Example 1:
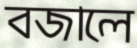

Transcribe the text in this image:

বজালে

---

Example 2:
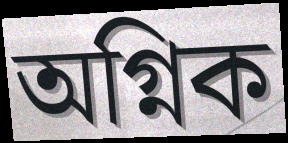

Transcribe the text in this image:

অগ্নিক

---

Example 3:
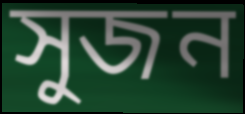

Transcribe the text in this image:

সুজন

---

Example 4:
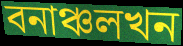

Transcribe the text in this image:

বনাঞ্চলখন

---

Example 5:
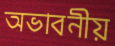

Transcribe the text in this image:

অভাবনীয়